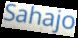
Sahajo